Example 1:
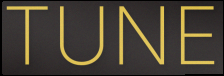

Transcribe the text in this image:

TUNE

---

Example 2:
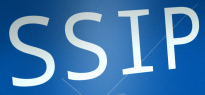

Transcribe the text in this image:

SSIP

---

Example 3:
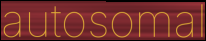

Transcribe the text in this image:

autosomal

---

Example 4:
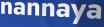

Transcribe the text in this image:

nannaya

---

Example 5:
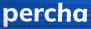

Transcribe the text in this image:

percha